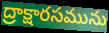
ద్రాక్షారసమును